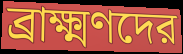
ব্রাক্ষ্মণদের